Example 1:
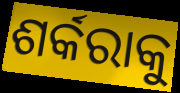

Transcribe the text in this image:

ଶର୍କରାକୁ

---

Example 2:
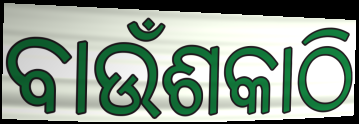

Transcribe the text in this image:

ବାଉଁଶକାଠି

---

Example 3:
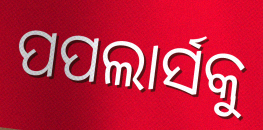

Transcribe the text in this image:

ପପଲାର୍ସକୁ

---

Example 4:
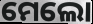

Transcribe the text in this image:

ମେଲୋ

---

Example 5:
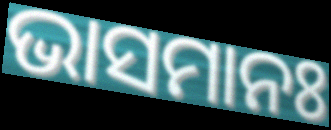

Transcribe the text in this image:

ଭାସମାନଃ